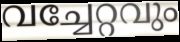
വച്ചേറ്റവും